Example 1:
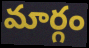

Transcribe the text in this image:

మార్గం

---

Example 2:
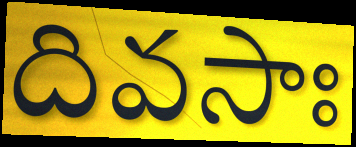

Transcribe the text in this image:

దివసాః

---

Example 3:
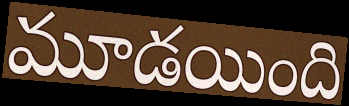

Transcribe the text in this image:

మూడయింది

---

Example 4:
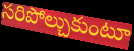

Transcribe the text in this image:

సరిపోల్చుకుంటూ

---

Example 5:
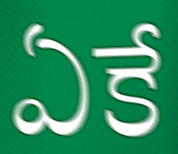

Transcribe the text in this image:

ఏకే